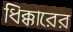
ধিক্কারের